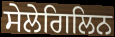
ਸੇਲੇਗਿਲਿਨ